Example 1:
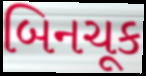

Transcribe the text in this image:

બિનચૂક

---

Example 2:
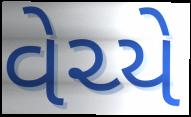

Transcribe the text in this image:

વેચ્યે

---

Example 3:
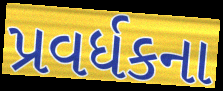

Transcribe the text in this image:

પ્રવર્ધકના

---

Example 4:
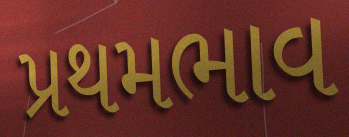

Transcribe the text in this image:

પ્રથમભાવ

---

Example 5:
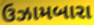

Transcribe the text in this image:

ઉઝામબારા